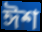
ঈশ